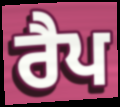
ਰੈਪ